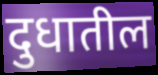
दुधातील